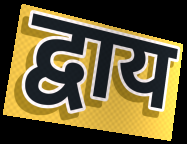
द्वाय